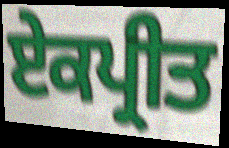
ਏਕਪ੍ਰੀਤ